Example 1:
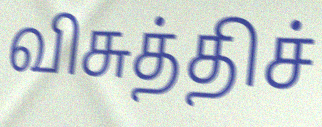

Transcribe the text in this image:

விசுத்திச்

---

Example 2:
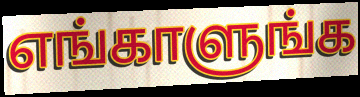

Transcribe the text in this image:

எங்காளுங்க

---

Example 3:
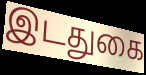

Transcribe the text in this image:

இடதுகை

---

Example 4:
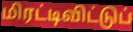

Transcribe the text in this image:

மிரட்டிவிட்டுப்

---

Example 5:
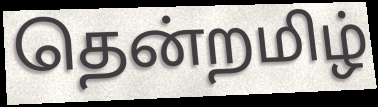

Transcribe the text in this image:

தென்றமிழ்